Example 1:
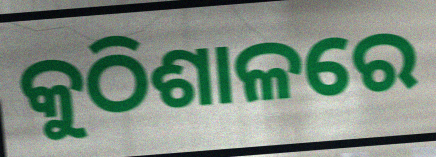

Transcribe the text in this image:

କୁଠିଶାଳରେ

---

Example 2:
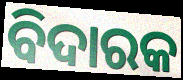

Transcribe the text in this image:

ବିଦାରକ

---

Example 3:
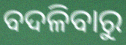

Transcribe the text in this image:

ବଦଳିବାରୁ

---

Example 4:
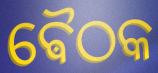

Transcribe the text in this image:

ଵୈଠକ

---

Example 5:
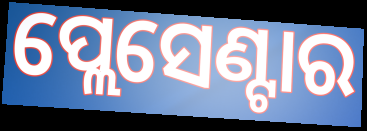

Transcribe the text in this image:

ପ୍ଲେସେଣ୍ଟାର